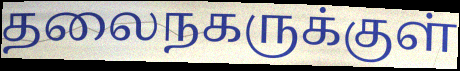
தலைநகருக்குள்